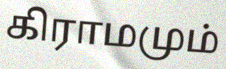
கிராமமும்